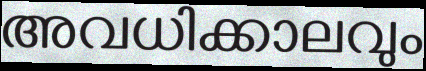
അവധിക്കാലവും